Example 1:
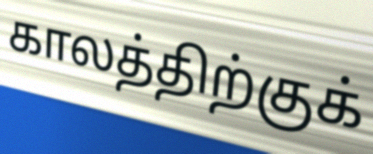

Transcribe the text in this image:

காலத்திற்குக்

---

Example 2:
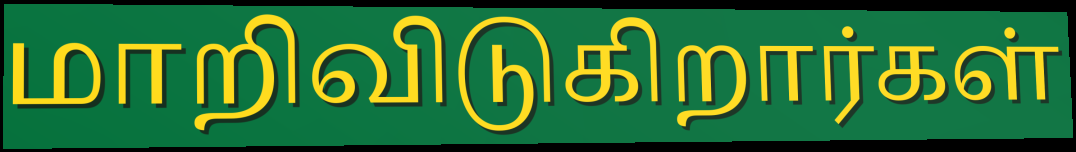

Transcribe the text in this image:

மாறிவிடுகிறார்கள்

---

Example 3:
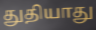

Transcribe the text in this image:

துதியாது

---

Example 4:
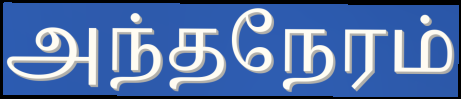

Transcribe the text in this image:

அந்தநேரம்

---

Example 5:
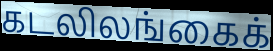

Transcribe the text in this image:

கடலிலங்கைக்